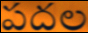
పదల